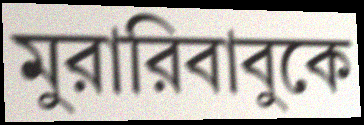
মুরারিবাবুকে